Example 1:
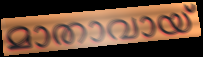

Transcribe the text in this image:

മാതാവായ്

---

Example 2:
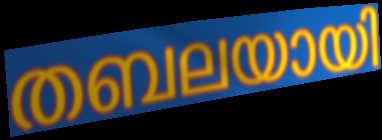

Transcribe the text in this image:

തബലയായി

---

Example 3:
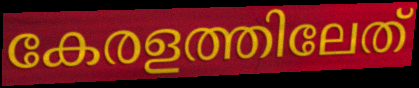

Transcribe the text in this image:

കേരളത്തിലേത്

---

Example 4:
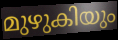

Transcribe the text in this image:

മുഴുകിയും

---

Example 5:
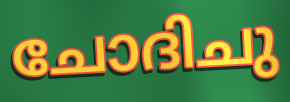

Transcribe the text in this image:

ചോദിചു